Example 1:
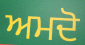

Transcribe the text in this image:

ਅਮਦੋ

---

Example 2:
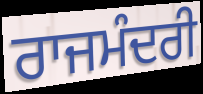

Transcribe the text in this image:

ਰਾਜਮੰਦਰੀ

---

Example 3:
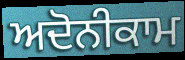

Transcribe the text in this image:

ਅਦੋਨੀਕਾਮ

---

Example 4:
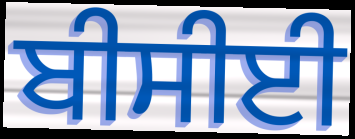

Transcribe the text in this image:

ਬੀਸੀਈ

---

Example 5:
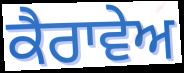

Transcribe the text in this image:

ਕੈਰਾਵੇਅ